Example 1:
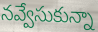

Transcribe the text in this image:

నవ్వేసుకున్నా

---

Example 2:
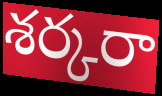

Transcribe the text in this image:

శర్కరా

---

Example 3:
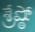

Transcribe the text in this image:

శ్రేష్ఠో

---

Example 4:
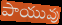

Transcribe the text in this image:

పాయువు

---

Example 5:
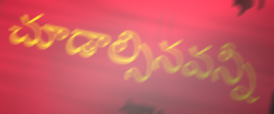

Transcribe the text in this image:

చూడాల్సినవన్నీ